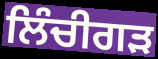
ਲਿੰਚੀਗੜ